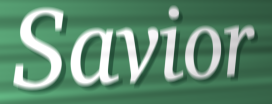
Savior